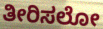
ತೀರಿಸಲೋ